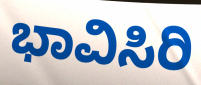
ಭಾವಿಸಿರಿ